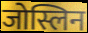
जोस्लिन